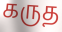
கருத